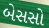
બેસસો